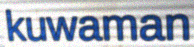
kuwaman